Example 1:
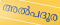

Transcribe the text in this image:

അൽപദൂര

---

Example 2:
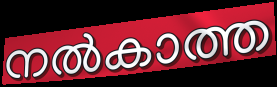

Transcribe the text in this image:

നൽകാത്ത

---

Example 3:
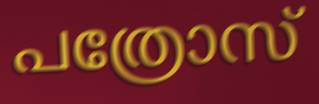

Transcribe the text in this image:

പത്രോസ്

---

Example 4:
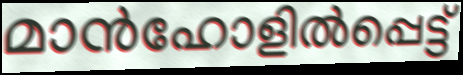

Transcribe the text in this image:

മാൻഹോളിൽപ്പെട്ട്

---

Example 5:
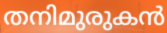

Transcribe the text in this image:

തനിമുരുകൻ